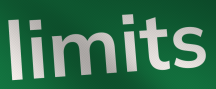
limits